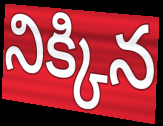
నిక్కిన